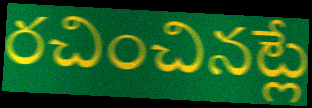
రచించినట్లే